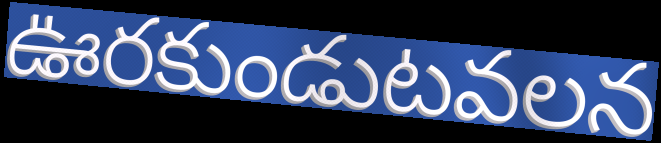
ఊరకుండుటవలన